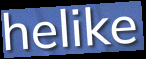
helike